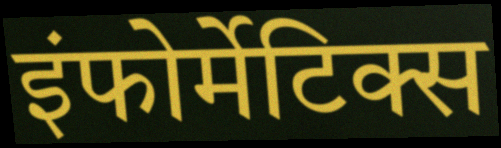
इंफोर्मेटिक्स